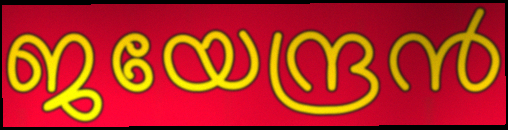
ജയേന്ദ്രൻ